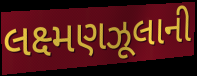
લક્ષ્મણઝૂલાની